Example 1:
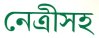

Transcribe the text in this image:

নেত্রীসহ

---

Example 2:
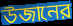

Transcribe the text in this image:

উজানের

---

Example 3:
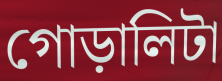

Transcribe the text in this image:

গোড়ালিটা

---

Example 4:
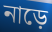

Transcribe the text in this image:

নাড়ে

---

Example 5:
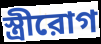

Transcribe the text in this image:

স্ত্রীরোগ